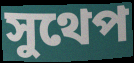
সুথেপ